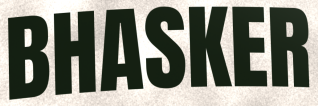
BHASKER